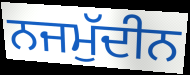
ਨਜਮੁੱਦੀਨ